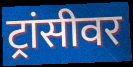
ट्रांसीवर